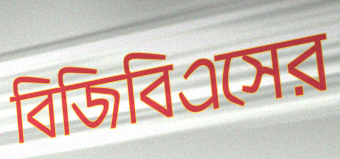
বিজিবিএসের